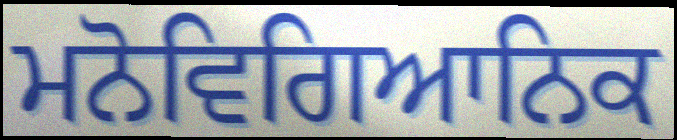
ਮਨੋਵਿਗਿਆਨਿਕ